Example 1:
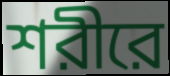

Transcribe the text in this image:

শরীরে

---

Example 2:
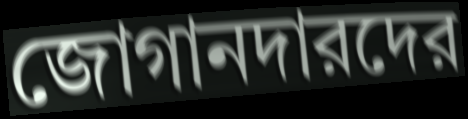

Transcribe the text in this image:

জোগানদারদের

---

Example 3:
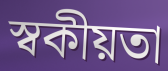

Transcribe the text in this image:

স্বকীয়তা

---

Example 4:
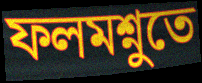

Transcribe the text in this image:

ফলমশ্নুতে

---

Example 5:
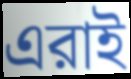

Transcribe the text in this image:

এরাই